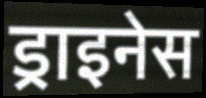
ड्राइनेस